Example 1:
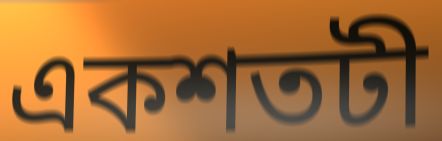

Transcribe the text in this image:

একশতটী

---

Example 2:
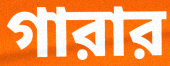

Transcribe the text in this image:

গারার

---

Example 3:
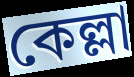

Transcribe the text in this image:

কেল্লা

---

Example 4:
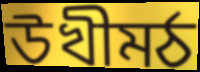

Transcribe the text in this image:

উখীমঠ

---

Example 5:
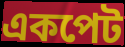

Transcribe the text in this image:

একপেট